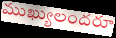
ముఖ్యులందరూ